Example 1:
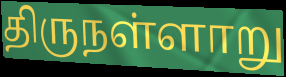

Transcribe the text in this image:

திருநள்ளாறு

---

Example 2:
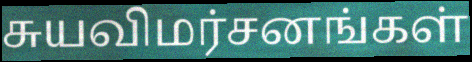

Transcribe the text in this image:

சுயவிமர்சனங்கள்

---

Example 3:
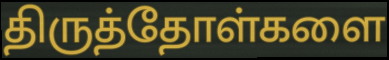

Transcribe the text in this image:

திருத்தோள்களை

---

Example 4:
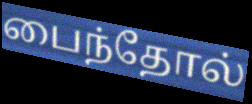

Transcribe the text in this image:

பைந்தோல்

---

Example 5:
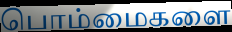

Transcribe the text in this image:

பொம்மைகளை